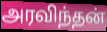
அரவிந்தன்